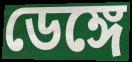
ডেঙ্গে